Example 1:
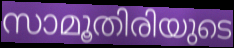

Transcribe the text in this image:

സാമൂതിരിയുടെ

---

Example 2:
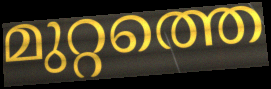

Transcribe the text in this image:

മുറ്റത്തെ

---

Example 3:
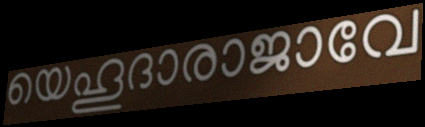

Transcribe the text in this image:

യെഹൂദാരാജാവേ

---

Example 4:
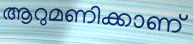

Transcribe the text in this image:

ആറുമണിക്കാണ്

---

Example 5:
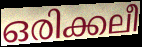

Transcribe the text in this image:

ഒരിക്കലീ